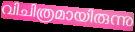
വിചിത്രമായിരുന്നു